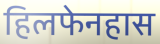
हिलफेनहास